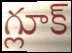
గ్లూక్